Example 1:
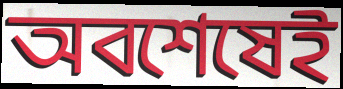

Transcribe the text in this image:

অবশেষেই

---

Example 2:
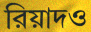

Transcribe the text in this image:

রিয়াদও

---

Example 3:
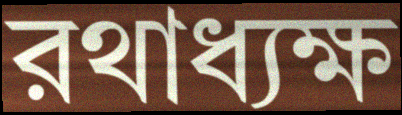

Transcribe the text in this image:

রথাধ্যক্ষ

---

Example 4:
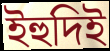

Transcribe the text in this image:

ইহুদিই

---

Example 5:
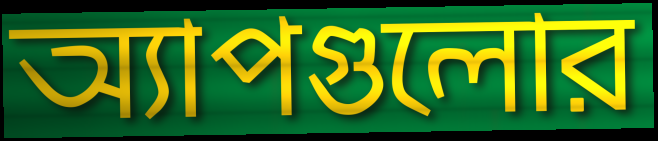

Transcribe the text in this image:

অ্যাপগুলোর